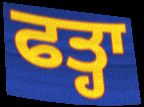
ਫਤ੍ਹਾ